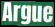
Argue